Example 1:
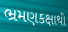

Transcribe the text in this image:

ભ્રમણકક્ષાથી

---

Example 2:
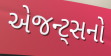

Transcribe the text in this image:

એજન્ટ્સનો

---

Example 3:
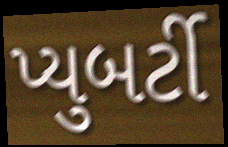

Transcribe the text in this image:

પ્યુબર્ટી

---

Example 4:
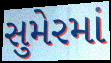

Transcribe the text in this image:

સુમેરમાં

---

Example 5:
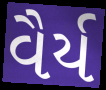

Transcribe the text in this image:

વૈર્ય